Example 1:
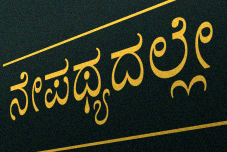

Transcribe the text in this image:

ನೇಪಥ್ಯದಲ್ಲೇ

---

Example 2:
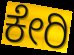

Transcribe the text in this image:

ಕೇರಿ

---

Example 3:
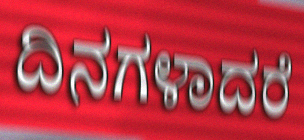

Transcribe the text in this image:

ದಿನಗಳಾದರೆ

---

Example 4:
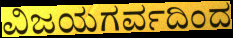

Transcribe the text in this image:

ವಿಜಯಗರ್ವದಿಂದ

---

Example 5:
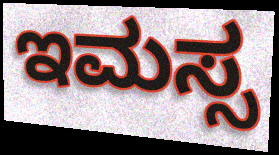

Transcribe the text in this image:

ಇಮಸ್ಸ